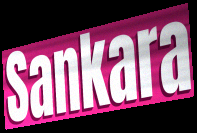
Sankara